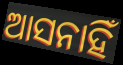
ଆସନାହିଁ